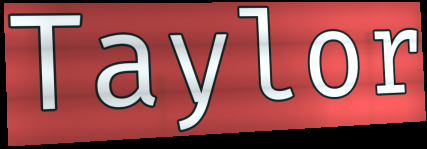
Taylor